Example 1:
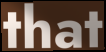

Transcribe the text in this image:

that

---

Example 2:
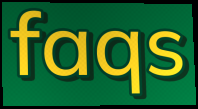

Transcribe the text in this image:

faqs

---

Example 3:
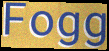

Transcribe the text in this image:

Fogg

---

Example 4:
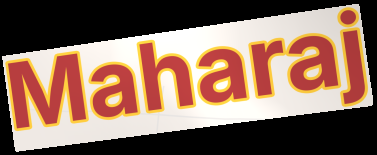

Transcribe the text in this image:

Maharaj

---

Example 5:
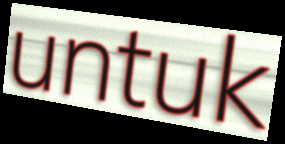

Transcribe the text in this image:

untuk